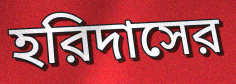
হরিদাসের